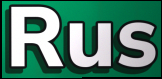
Rus